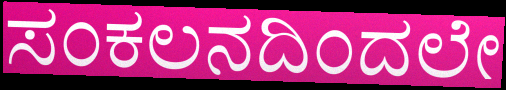
ಸಂಕಲನದಿಂದಲೇ